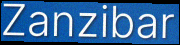
Zanzibar